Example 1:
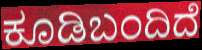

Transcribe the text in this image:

ಕೂಡಿಬಂದಿದೆ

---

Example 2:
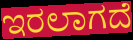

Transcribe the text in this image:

ಇರಲಾಗದೆ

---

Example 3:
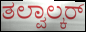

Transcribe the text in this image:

ತಲ್ವಾಲ್ಕರ್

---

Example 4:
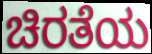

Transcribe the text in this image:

ಚಿರತೆಯ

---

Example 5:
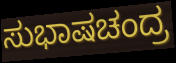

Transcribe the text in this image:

ಸುಭಾಷಚಂದ್ರ